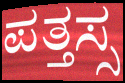
ಪತ್ತಸ್ಸ